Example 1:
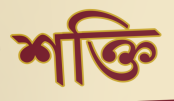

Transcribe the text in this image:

শক্তি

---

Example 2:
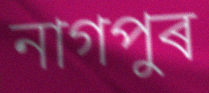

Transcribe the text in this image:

নাগপুৰ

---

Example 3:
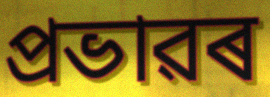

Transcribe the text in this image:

প্ৰভাৱৰ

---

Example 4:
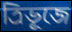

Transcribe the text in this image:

ত্ৰিভূজে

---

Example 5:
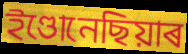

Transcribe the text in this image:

ইণ্ডোনেছিয়াৰ